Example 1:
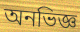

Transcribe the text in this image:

অনভিজ্ঞ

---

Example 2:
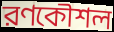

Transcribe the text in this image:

রণকৌশল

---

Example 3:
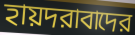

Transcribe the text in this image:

হায়দরাবাদের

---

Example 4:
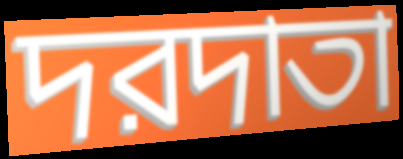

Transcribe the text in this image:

দরদাতা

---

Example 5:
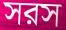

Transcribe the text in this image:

সরস